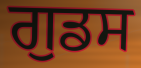
ਗੁਡਸ